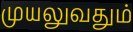
முயலுவதும்